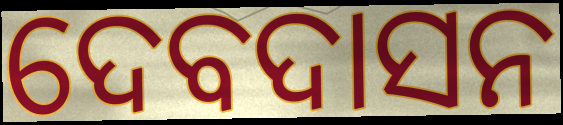
ଦେବଦାସନ